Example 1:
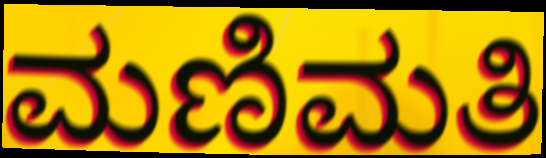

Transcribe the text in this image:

ಮಣಿಮತಿ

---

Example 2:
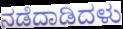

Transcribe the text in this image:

ನಡೆದಾಡಿದಳು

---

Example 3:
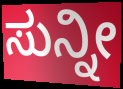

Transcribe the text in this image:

ಸುನ್ನೀ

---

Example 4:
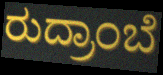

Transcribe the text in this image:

ರುದ್ರಾಂಬೆ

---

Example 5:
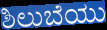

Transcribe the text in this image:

ಶಿಲುಬೆಯು